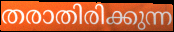
തരാതിരിക്കുന്ന